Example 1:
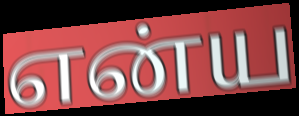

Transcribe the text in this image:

என்ய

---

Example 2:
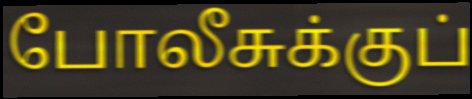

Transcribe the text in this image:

போலீசுக்குப்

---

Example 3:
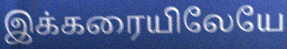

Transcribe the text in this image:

இக்கரையிலேயே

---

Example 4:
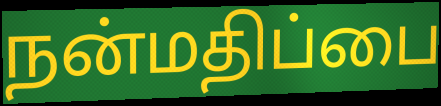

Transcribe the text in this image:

நன்மதிப்பை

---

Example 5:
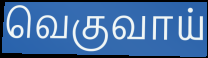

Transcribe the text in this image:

வெகுவாய்